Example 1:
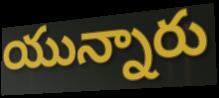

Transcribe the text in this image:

యున్నారు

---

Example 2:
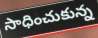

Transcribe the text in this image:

సాధించుకున్న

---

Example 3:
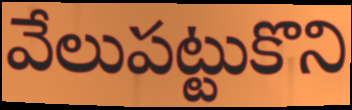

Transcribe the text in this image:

వేలుపట్టుకొని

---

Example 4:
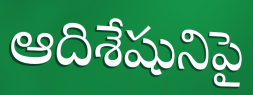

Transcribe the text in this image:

ఆదిశేషునిపై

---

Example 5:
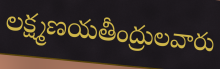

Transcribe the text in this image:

లక్ష్మణయతీంద్రులవారు